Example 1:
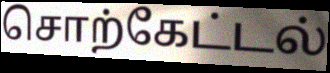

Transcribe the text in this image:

சொற்கேட்டல்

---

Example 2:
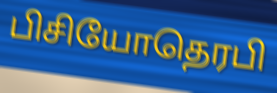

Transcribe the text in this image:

பிசியோதெரபி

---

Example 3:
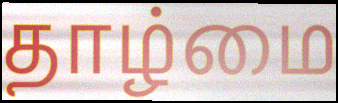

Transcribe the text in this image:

தாழ்மை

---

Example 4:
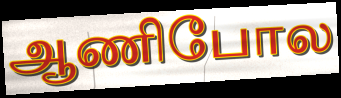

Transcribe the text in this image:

ஆணிபோல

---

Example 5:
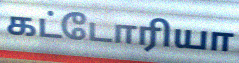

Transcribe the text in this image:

கட்டோரியா